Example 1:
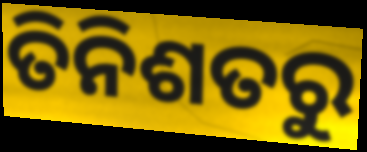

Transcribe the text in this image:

ତିନିଶତରୁ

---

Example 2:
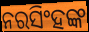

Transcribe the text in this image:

ନରସିଂହଙ୍କ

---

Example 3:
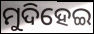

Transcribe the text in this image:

ମୁଦିହେଇ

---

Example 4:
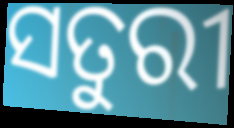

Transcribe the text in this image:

ସତୁରୀ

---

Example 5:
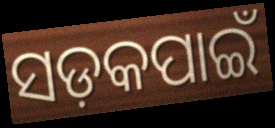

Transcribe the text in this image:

ସଡ଼କପାଇଁ